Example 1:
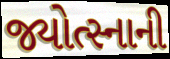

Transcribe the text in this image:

જ્યોત્સ્નાની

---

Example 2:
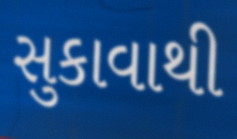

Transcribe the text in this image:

સુકાવાથી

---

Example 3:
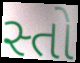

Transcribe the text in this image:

સ્તો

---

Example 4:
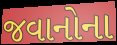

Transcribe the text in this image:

જવાનોના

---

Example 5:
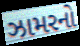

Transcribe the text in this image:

ઝામરનો